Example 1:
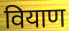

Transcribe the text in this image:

वियाण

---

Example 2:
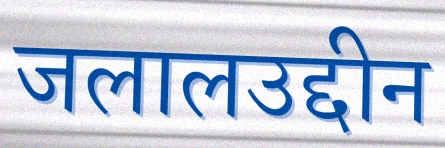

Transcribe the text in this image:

जलालउद्दीन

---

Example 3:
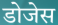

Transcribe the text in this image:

डोजेस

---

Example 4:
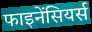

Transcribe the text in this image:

फाइनेंसियर्स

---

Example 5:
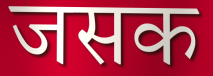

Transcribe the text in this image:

जसक